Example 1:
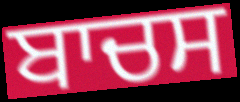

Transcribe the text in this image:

ਬਾਚਸ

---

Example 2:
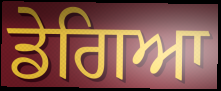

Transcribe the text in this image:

ਡੇਗਿਆ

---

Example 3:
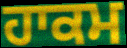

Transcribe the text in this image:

ਹਾਕਮ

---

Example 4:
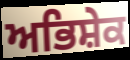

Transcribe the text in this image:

ਅਭਿਸ਼ੇਕ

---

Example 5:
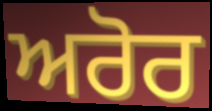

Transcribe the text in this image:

ਅਰੋਰ